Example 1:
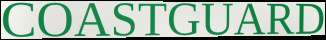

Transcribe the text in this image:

COASTGUARD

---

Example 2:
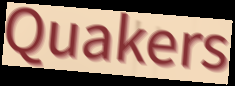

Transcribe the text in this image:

Quakers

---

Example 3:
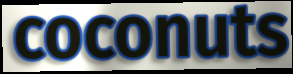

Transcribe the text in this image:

coconuts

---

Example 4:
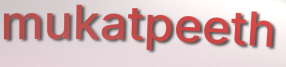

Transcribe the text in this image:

mukatpeeth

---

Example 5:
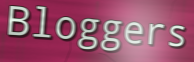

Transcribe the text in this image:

Bloggers